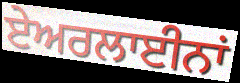
ਏਅਰਲਾਈਨਾਂ